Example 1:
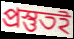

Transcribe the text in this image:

প্রস্তুতই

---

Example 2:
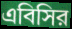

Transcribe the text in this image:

এবিসির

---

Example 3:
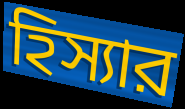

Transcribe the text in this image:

হিস্যার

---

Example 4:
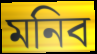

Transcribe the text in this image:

মনিব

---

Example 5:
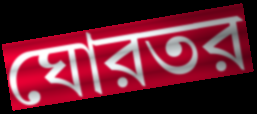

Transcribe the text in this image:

ঘোরতর